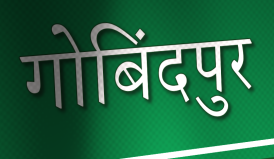
गोबिंदपुर